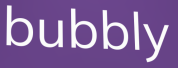
bubbly